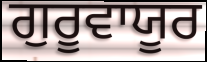
ਗੁਰੂਵਾਯੂਰ